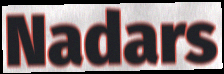
Nadars